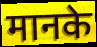
मानके